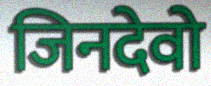
जिनदेवो